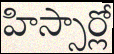
హిస్సార్లో